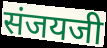
संजयजी